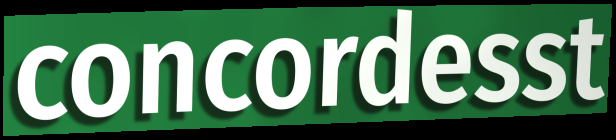
concordesst